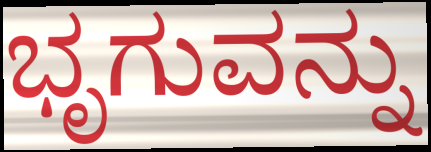
ಭೃಗುವನ್ನು